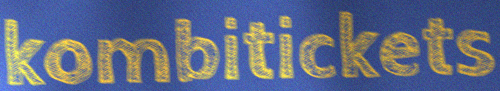
kombitickets